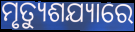
ମୃତ୍ୟୁଶଯ୍ୟାରେ